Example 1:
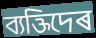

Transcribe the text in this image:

ব্যক্তিদেৰ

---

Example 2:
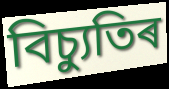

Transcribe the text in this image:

বিচ্যুতিৰ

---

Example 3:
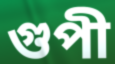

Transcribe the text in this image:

গুপী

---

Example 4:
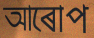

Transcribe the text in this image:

আৰোপ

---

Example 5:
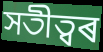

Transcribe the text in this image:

সতীত্বৰ